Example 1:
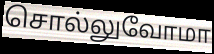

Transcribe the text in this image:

சொல்லுவோமா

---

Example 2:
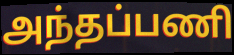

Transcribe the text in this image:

அந்தப்பணி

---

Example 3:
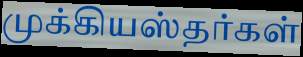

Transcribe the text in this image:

முக்கியஸ்தர்கள்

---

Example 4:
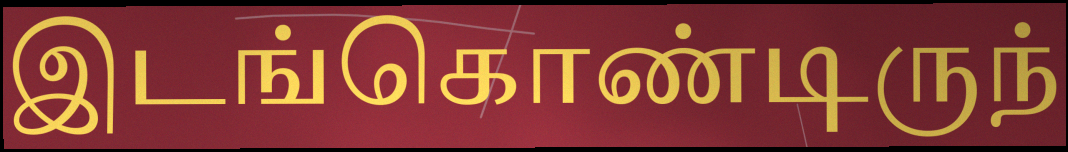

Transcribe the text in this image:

இடங்கொண்டிருந்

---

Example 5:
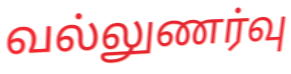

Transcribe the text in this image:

வல்லுணர்வு